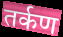
तर्कण